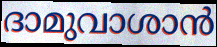
ദാമുവാശാൻ